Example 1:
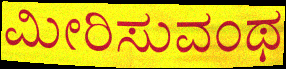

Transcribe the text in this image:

ಮೀರಿಸುವಂಥ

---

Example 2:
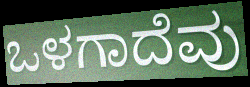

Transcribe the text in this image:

ಒಳಗಾದೆವು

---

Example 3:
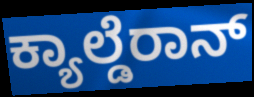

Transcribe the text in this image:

ಕ್ಯಾಲ್ಡೆರಾನ್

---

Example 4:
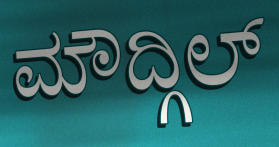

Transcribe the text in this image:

ಮೌದ್ಗಿಲ್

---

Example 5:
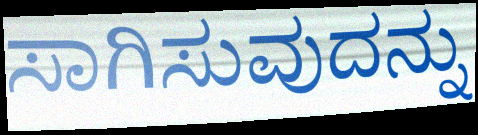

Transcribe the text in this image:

ಸಾಗಿಸುವುದನ್ನು